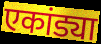
एकांड्या